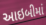
આઇબીમાં